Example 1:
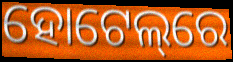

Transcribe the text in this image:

ହୋଟେଲ୍‌ରେ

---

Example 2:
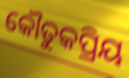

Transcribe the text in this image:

କୌତୁକପ୍ରିୟ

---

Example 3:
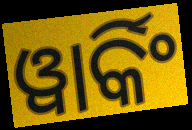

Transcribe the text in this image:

ୱାର୍କିଂ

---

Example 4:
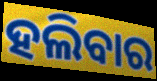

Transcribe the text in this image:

ହଲିବାର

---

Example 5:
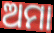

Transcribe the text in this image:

ଅମା